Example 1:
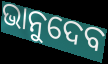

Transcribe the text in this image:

ଭାନୁଦେବ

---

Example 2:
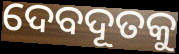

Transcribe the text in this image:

ଦେବଦୂତକୁ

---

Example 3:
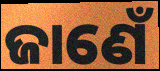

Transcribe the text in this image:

ଜାଣେଁ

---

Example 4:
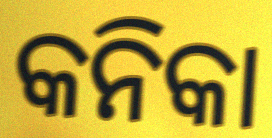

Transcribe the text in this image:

କନିକା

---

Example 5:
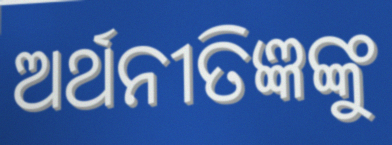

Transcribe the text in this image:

ଅର୍ଥନୀତିଜ୍ଞଙ୍କୁ